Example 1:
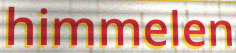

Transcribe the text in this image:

himmelen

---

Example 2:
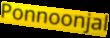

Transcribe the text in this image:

Ponnoonjal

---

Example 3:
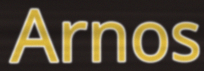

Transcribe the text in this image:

Arnos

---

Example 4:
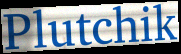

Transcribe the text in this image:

Plutchik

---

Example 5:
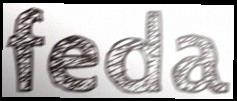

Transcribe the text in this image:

feda